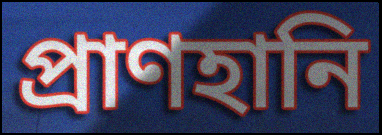
প্রাণহানি